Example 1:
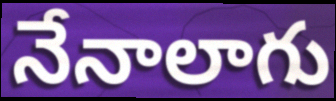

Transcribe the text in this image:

నేనాలాగు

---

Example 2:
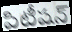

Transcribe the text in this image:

పిటీషన్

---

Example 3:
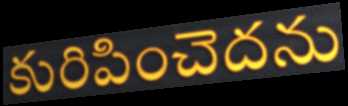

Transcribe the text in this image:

కురిపించెదను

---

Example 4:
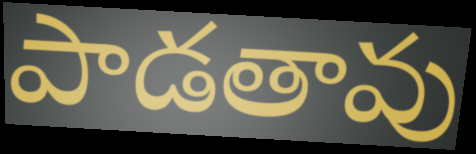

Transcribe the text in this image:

పాడతావు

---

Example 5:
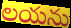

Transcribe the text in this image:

లయను